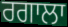
ਰਗਾਲਾ